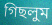
গিছলুম